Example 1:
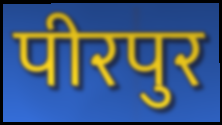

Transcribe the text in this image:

पीरपुर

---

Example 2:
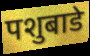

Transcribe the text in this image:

पशुबाडे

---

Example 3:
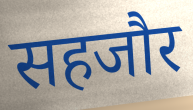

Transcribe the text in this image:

सहजौर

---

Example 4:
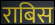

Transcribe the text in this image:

राबिस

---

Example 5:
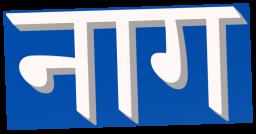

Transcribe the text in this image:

नाग